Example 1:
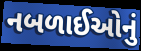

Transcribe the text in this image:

નબળાઈઓનું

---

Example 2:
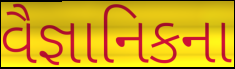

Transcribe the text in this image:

વૈજ્ઞાનિકના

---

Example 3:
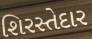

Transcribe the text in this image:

શિરસ્તેદાર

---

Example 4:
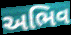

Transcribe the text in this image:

અભિવ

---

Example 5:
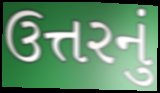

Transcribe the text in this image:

ઉત્તરનું